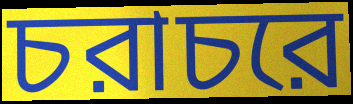
চরাচরে